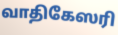
வாதிகேஸரி